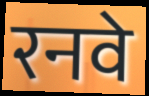
रनवे